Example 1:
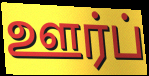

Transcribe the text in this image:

ஊர்ப்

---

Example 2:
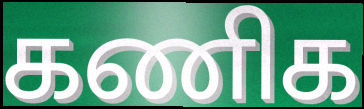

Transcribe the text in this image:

கணிக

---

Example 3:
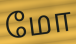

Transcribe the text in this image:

மோ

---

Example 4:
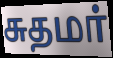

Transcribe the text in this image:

சுதமர்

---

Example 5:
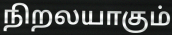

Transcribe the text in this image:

நிறலயாகும்